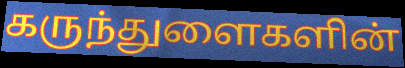
கருந்துளைகளின்